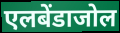
एलबेंडाजोल